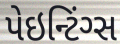
પેઇન્ટિંગ્સ